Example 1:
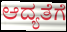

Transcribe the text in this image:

ಆದ್ಯತೆಗೆ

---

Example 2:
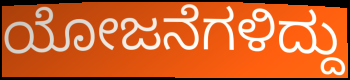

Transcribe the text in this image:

ಯೋಜನೆಗಳಿದ್ದು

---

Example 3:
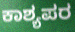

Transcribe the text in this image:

ಕಾಶ್ಯಪರ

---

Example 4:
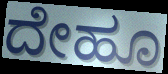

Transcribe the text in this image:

ದೇಹೂ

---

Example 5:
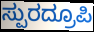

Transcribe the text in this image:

ಸ್ಪುರದ್ರೂಪಿ